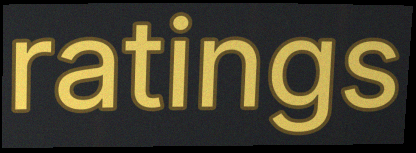
ratings